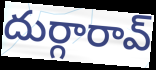
దుర్గారావ్